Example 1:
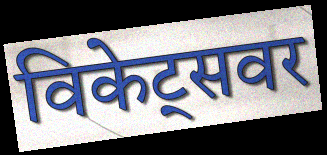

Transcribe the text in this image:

विकेट्सवर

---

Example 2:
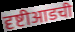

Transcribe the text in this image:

दृष्टीआडची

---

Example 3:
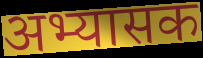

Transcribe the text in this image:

अभ्यासक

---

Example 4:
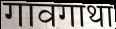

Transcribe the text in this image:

गावगाथा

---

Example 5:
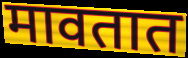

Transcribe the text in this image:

मावतात